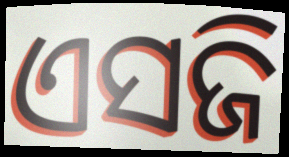
ଏସଜି